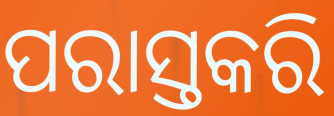
ପରାସ୍ତକରି